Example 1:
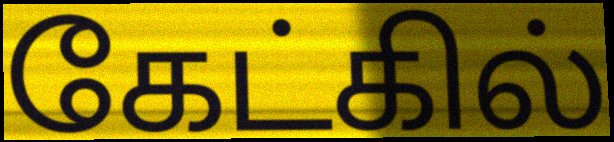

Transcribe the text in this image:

கேட்கில்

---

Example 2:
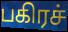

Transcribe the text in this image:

பகிரச்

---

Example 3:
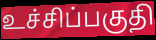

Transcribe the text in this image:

உச்சிப்பகுதி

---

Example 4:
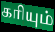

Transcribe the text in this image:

கரியும்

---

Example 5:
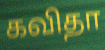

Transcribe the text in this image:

கவிதா